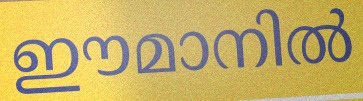
ഈമാനിൽ